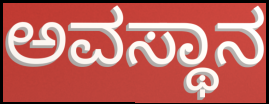
ಅವಸ್ಥಾನ